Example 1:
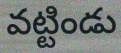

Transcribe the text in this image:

వట్టిండు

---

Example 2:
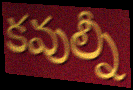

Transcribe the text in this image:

కవుల్నీ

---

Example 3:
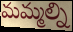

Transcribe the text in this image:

మమ్మల్ని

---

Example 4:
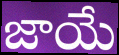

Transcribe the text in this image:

జాయే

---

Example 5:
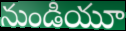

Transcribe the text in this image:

నుండియూ